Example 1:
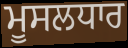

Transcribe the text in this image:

ਮੂਸਲਧਾਰ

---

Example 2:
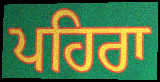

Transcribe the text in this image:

ਪਹਿਰਾ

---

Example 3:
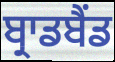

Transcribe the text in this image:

ਬ੍ਰਾਡਬੈਂਡ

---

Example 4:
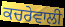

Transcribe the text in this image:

ਕਚਰੇਵਾਲੀ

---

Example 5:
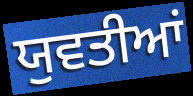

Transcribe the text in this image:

ਯੁਵਤੀਆਂ